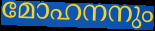
മോഹനനും